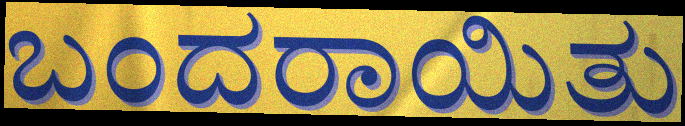
ಬಂದರಾಯಿತು